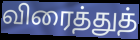
விரைத்துத்